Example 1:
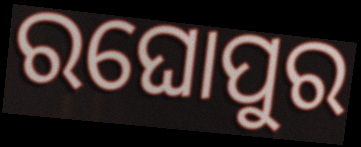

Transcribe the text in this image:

ରଘୋପୁର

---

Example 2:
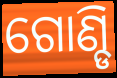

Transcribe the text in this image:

ଗୋଣ୍ଡି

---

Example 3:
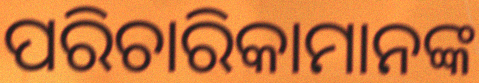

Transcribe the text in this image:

ପରିଚାରିକାମାନଙ୍କ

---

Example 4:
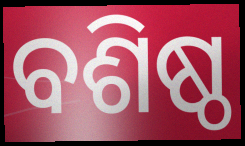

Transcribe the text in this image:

ବଶିଷ୍ଠ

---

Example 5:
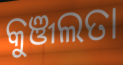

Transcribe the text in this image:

କୁଞ୍ଜଲତା